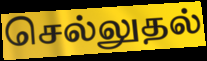
செல்லுதல்